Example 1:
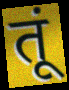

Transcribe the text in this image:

तूं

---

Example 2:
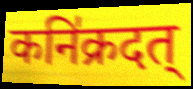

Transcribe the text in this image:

कनि॑क्रदत्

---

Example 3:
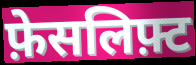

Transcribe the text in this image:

फ़ेसलिफ़्ट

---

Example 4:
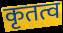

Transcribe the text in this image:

कृतत्व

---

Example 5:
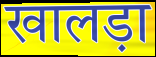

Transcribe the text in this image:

खालड़ा